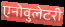
एनोवुलेटरी